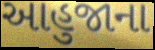
આહુજાના